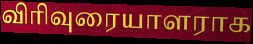
விரிவுரையாளராக